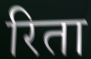
रिता